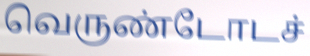
வெருண்டோடச்